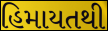
હિમાયતથી